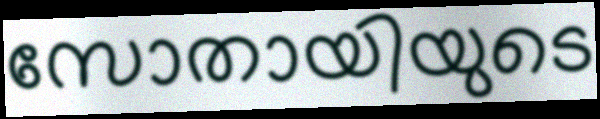
സോതായിയുടെ